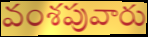
వంశపువారు